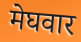
मेघवार